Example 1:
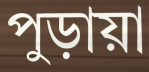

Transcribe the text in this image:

পুড়ায়া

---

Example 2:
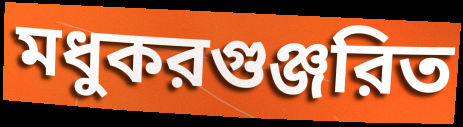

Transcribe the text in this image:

মধুকরগুঞ্জরিত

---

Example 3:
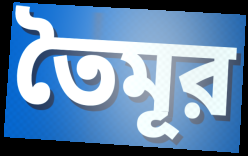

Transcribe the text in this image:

তৈমূর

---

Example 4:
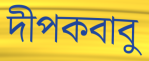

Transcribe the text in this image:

দীপকবাবু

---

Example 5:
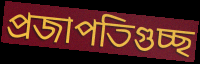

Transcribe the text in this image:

প্রজাপতিগুচ্ছ